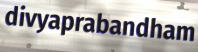
divyaprabandham